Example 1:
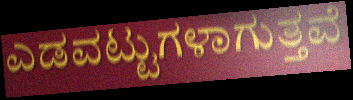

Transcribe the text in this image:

ಎಡವಟ್ಟುಗಳಾಗುತ್ತವೆ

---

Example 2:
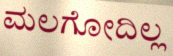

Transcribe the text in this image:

ಮಲಗೋದಿಲ್ಲ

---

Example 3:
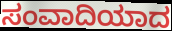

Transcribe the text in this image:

ಸಂವಾದಿಯಾದ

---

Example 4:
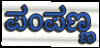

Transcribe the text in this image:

ಪಂಪಣ್ಣ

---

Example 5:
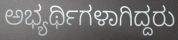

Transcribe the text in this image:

ಅಭ್ಯರ್ಥಿಗಳಾಗಿದ್ದರು